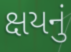
ક્ષયનું